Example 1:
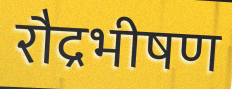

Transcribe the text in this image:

रौद्रभीषण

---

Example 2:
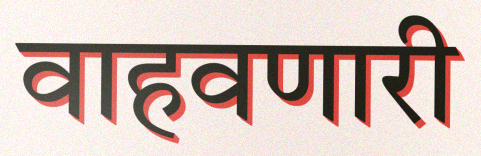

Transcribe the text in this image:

वाहवणारी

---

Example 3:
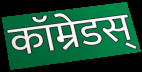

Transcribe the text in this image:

कॉम्रेडस्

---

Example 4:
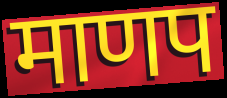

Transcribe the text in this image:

माणप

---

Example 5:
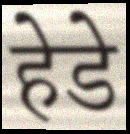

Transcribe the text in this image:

हेडे